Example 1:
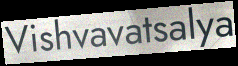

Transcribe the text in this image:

Vishvavatsalya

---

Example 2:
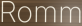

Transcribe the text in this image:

Romm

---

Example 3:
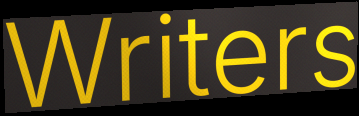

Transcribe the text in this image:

Writers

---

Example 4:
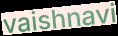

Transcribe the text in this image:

vaishnavi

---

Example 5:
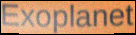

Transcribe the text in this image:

Exoplanet